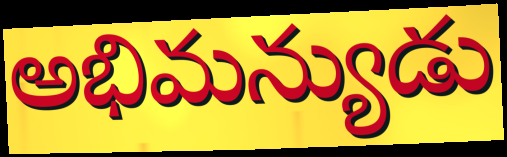
అభిమన్యుడు